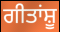
ਗੀਤਾਂਸ਼ੂ